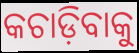
କଚାଡ଼ିବାକୁ